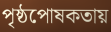
পৃষ্ঠপোষকতায়